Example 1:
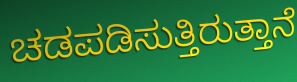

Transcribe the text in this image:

ಚಡಪಡಿಸುತ್ತಿರುತ್ತಾನೆ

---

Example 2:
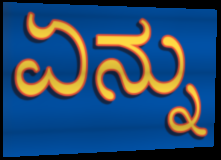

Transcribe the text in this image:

ಏನ್ನು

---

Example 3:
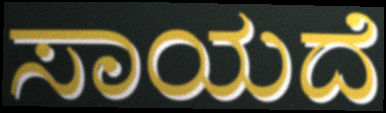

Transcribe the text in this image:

ಸಾಯದೆ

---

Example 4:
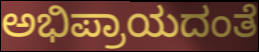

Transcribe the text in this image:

ಅಭಿಪ್ರಾಯದಂತೆ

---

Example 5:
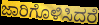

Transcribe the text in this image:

ಜಾರಿಗೊಳಿಸಿದರೆ